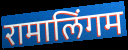
रामालिंगम